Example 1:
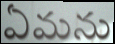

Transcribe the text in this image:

ఏమను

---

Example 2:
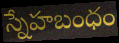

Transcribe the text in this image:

స్నేహబంధం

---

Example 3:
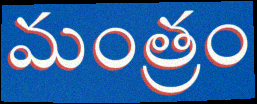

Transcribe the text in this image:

మంత్రం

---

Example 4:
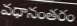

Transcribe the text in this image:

వధానంతరం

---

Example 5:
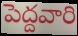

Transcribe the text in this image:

పెద్దవారి